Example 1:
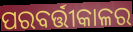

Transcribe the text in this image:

ପରବର୍ତ୍ତୀକାଳର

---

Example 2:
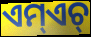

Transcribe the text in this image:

ଏମ୍ଏଚ୍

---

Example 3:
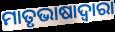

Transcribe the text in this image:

ମାତୃଭାଷାଦ୍ୱାରା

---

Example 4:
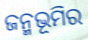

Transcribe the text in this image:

ଜନ୍ମଭୂମିର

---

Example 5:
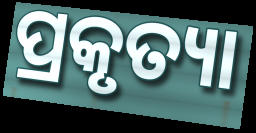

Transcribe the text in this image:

ପ୍ରକୃତ୍ୟା